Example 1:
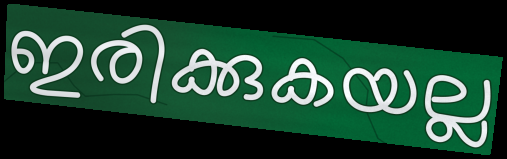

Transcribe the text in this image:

ഇരിക്കുകയല്ല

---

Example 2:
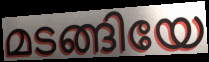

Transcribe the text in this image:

മടങ്ങിയേ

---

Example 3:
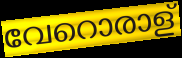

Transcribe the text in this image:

വേറൊരാള്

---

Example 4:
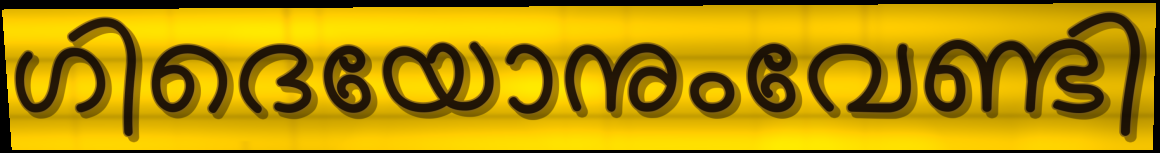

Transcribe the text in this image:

ഗിദെയോനുംവേണ്ടി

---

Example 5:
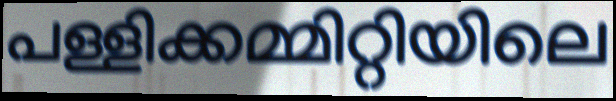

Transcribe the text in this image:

പള്ളിക്കമ്മിറ്റിയിലെ